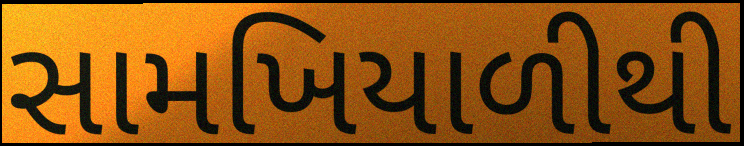
સામખિયાળીથી